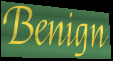
Benign